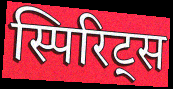
स्पिरिट्स